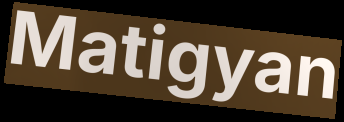
Matigyan